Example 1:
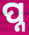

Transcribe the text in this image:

ପ୍ନ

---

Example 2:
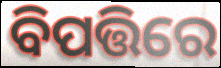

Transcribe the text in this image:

ବିପତ୍ତିରେ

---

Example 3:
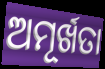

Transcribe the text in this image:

ଅମୂର୍ଖତା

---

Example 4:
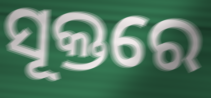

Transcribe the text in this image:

ସୂକ୍ତରେ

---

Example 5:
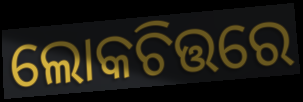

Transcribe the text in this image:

ଲୋକଚିତ୍ତରେ